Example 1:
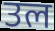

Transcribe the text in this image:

उल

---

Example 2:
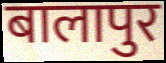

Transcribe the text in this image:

बालापुर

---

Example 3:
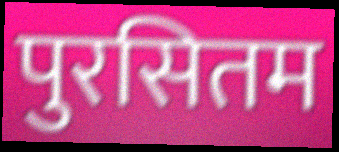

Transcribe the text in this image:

पुरसितम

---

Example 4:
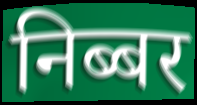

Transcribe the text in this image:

निब्बर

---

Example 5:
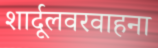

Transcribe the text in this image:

शार्दूलवरवाहना